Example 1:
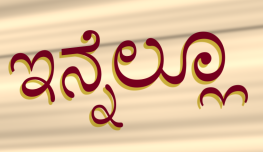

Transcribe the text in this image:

ಇನ್ನೆಲ್ಲೂ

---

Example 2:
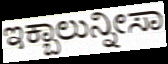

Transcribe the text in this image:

ಇಕ್ಬಾಲುನ್ನೀಸಾ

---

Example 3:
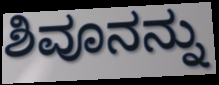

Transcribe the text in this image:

ಶಿವೂನನ್ನು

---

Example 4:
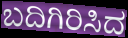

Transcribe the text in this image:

ಬದಿಗಿರಿಸಿದ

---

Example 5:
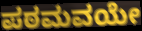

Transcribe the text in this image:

ಪಠಮವಯೇ